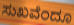
ಸುಖವೆಂದೂ